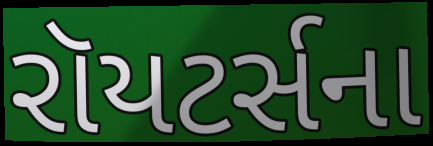
રૉયટર્સના